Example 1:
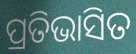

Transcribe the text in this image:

ପ୍ରତିଭାସିତ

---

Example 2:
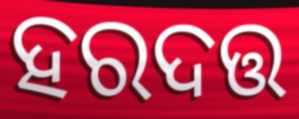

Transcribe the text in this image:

ହରଦତ୍ତ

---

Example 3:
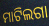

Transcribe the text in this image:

ମାଟିଲଗା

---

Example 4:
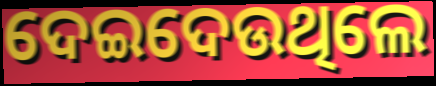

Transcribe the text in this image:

ଦେଇଦେଉଥିଲେ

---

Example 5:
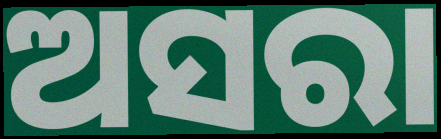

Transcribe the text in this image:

ଅସରା